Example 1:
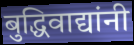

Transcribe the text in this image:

बुद्धिवाद्यांनी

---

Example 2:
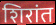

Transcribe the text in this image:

शिरांत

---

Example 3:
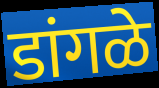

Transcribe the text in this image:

डांगळे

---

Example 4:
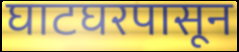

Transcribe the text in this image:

घाटघरपासून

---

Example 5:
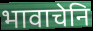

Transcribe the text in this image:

भावाचेनि